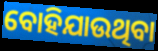
ବୋହିଯାଉଥିବା